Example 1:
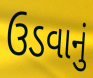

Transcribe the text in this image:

ઉડવાનું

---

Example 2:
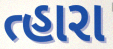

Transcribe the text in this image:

ત્હારા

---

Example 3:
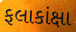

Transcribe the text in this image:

ફલાકાંક્ષા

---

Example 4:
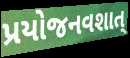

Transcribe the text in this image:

પ્રયોજનવશાત્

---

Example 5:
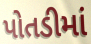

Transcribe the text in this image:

પોતડીમાં